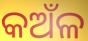
କଅଁଳ